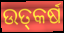
ଉତ୍‌କର୍ଷ